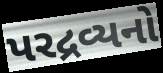
પરદ્રવ્યનો